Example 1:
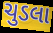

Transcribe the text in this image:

ચુડલા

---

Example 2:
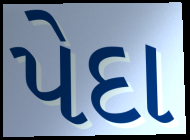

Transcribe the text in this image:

પેદા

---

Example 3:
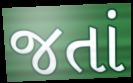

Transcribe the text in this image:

જતાં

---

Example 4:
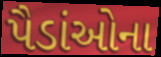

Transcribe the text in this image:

પૈડાંઓના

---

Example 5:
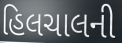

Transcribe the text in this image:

હિલચાલની